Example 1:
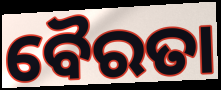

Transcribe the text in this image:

ବୈରତା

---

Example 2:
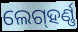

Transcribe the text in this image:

ଲେଗ୍‌ହର୍ଣ୍ଣ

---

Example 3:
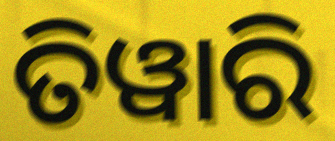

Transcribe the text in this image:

ତିୱାରି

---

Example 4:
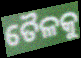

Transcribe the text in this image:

ତୈଳକୁ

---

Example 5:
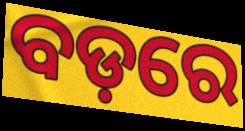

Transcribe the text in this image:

ବଡ଼ରେ